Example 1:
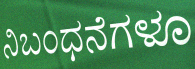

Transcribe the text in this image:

ನಿಬಂಧನೆಗಳೂ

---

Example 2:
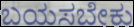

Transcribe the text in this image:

ಬಯಸಬೇಕು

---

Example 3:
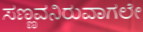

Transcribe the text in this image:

ಸಣ್ಣವನಿರುವಾಗಲೇ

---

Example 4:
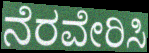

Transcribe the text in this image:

ನೆರವೇರಿಸಿ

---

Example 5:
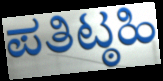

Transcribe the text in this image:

ಪತಿಟ್ಠಹಿ